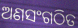
ଅଣସଂଗଠିତ